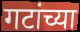
गटांच्या